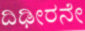
ದಿಢೀರನೇ